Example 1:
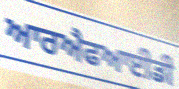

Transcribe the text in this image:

ਆਰਐਫਆਈਡੀ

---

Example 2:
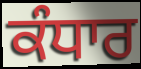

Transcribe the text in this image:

ਕੰਧਾਰ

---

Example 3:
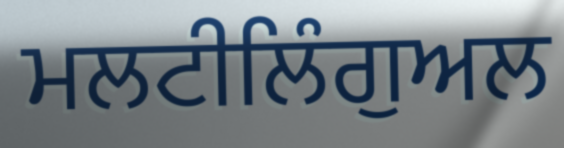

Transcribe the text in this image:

ਮਲਟੀਲਿੰਗੁਅਲ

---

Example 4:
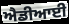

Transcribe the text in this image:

ਐਡੀਆਈ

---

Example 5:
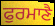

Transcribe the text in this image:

ਫੁਰਮਾਣੈ